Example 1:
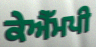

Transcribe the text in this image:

ਕੇਐੱਮਪੀ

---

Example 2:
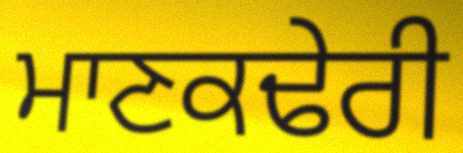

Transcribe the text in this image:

ਮਾਣਕਢੇਰੀ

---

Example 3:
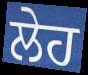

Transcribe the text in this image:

ਲੇਹ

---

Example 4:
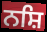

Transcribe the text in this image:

ਨਸ਼ਿ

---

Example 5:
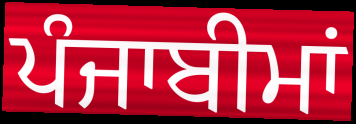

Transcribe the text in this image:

ਪੰਜਾਬੀਮਾਂ